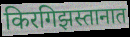
किरगिझस्तानात